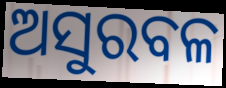
ଅସୁରବଳ